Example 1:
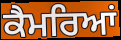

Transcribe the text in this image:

ਕੈਮਰਿਆਂ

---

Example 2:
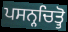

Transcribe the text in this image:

ਪਸਨ੍ਨਚਿਤ੍ਤੋ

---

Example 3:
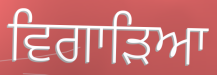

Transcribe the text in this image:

ਵਿਗਾੜਿਆ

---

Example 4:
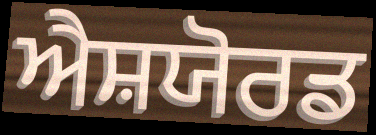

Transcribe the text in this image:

ਐਸ਼ਯੋਰਡ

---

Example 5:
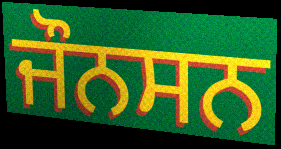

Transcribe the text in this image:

ਜੌਨਸਨ